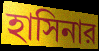
হাসিনার